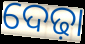
ଦେଢ଼ା